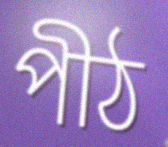
পীঠ